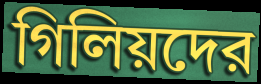
গিলিয়দের